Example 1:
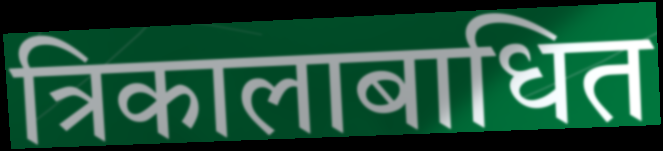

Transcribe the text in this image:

त्रिकालाबाधित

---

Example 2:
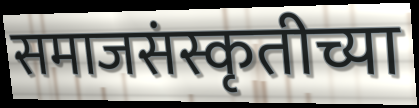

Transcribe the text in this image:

समाजसंस्कृतीच्या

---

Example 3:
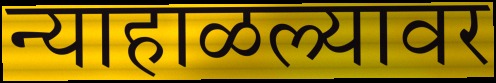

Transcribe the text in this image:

न्याहाळल्यावर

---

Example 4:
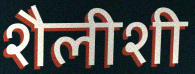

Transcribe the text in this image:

शैलीशी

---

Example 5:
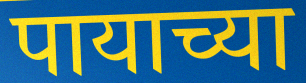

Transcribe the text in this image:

पायाच्या